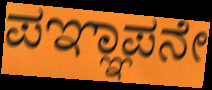
ಪಞ್ಞಾಪನೇ